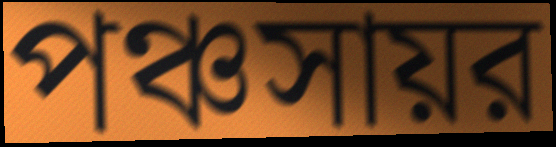
পঞ্চসায়র